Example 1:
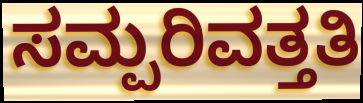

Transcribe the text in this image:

ಸಮ್ಪರಿವತ್ತತಿ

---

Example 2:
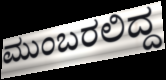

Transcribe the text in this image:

ಮುಂಬರಲಿದ್ದ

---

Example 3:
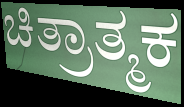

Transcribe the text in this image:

ಚಿತ್ರಾತ್ಮಕ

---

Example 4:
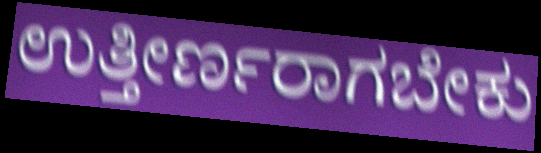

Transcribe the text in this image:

ಉತ್ತೀರ್ಣರಾಗಬೇಕು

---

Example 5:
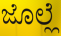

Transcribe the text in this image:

ಜೊಲ್ಲೆ